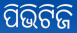
ପିଭିଟିଜି